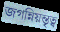
জগন্নিয়ন্তৃত্ব